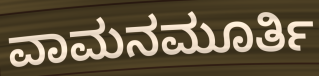
ವಾಮನಮೂರ್ತಿ